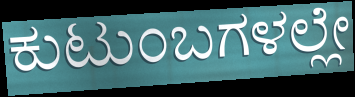
ಕುಟುಂಬಗಳಲ್ಲೇ